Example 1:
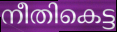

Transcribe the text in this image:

നീതികെട്ട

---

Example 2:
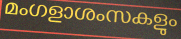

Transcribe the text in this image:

മംഗളാശംസകളും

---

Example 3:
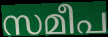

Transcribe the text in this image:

സമീപ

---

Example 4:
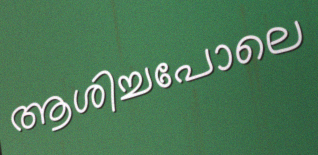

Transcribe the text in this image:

ആശിച്ചപോലെ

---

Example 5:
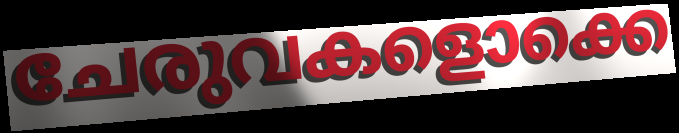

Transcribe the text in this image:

ചേരുവകളൊക്കെ